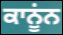
ਕਾਨੂਂਨ